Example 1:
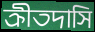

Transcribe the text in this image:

ক্রীতদাসি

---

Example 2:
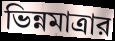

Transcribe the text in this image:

ভিন্নমাত্রার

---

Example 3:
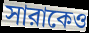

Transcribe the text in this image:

সারাকেও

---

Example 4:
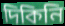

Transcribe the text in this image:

দিকিনি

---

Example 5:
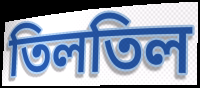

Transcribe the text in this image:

তিলতিল